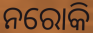
ନରୋକି